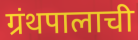
ग्रंथपालाची